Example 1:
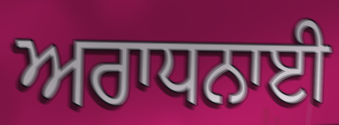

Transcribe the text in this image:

ਅਰਾਧਨਾਈ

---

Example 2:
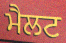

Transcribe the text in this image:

ਮੈਲਟ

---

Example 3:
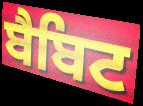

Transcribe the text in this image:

ਬੈਬਿਟ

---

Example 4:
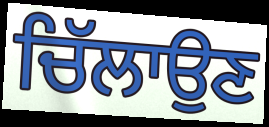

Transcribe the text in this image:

ਚਿੱਲਾਉਣ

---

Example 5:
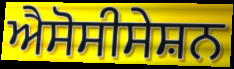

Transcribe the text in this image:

ਐਸੋਸੀਸੇਸ਼ਨ